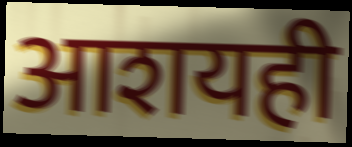
आशयही